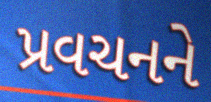
પ્રવચનને